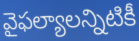
వైఫల్యాలన్నిటికీ